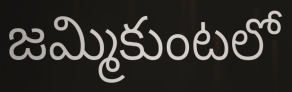
జమ్మికుంటలో